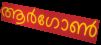
ആർഗോൺ